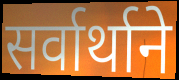
सर्वार्थाने